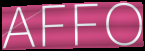
AFFO